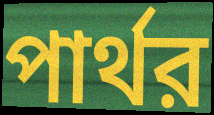
পার্থর